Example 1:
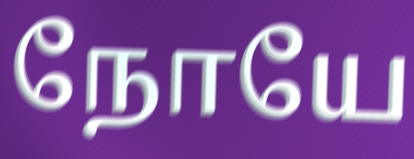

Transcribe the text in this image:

நோயே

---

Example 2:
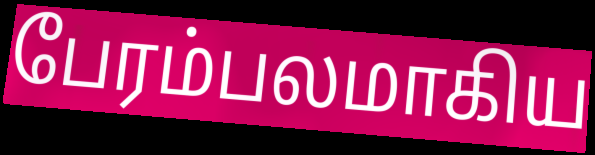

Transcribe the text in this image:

பேரம்பலமாகிய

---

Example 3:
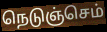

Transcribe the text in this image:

நெடுஞ்செம்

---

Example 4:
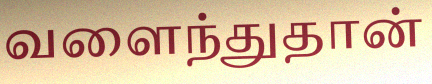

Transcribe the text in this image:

வளைந்துதான்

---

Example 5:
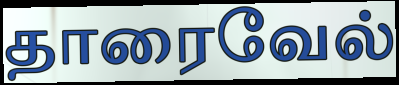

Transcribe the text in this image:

தாரைவேல்